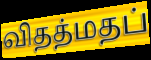
விதத்மதப்